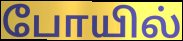
போயில்